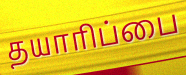
தயாரிப்பை